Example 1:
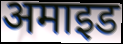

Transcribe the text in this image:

अमाइड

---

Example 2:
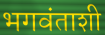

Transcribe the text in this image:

भगवंताशी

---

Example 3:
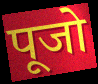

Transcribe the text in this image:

पूजो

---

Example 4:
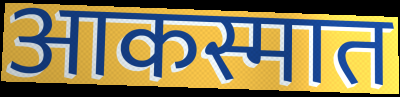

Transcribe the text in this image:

आकस्मात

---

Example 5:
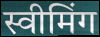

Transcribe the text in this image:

स्वीमिंग